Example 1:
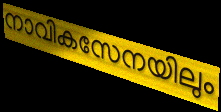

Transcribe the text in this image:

നാവികസേനയിലും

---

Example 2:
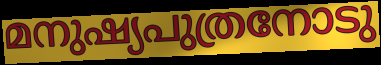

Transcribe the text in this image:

മനുഷ്യപുത്രനോടു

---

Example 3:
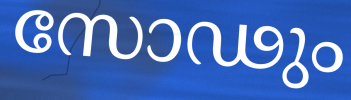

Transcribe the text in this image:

സോഢും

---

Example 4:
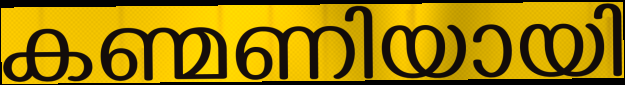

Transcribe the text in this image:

കണ്മണിയായി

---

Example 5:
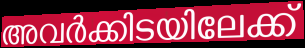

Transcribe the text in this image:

അവർക്കിടയിലേക്ക്